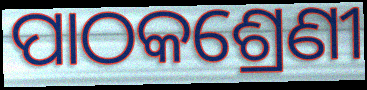
ପାଠକଶ୍ରେଣୀ